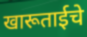
खारूताईचे